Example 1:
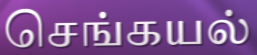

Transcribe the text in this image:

செங்கயல்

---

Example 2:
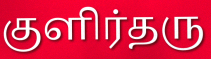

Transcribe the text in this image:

குளிர்தரு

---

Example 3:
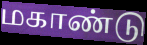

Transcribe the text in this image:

மகாண்டு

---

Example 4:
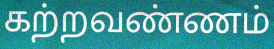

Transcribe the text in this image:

கற்றவண்ணம்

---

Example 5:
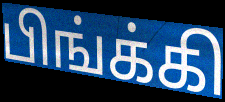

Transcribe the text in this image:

பிங்க்கி